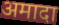
अमादा